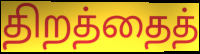
திறத்தைத்